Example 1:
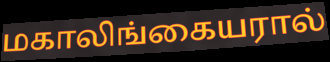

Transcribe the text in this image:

மகாலிங்கையரால்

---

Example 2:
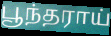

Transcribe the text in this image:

பூந்தராய்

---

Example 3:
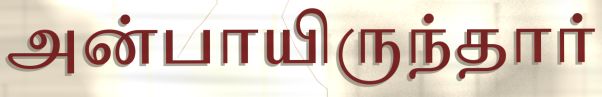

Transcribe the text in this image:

அன்பாயிருந்தார்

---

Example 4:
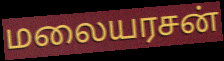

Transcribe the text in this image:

மலையரசன்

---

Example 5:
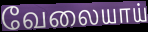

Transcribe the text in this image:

வேலையாய்